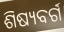
ଶିଷ୍ୟବର୍ଗ